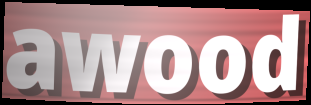
awood